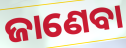
ଜାଣେବା